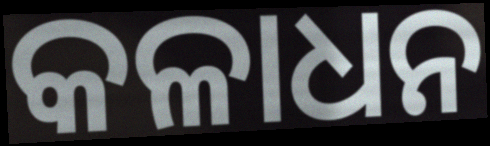
କଳାଧନ